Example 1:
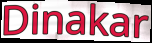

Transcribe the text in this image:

Dinakar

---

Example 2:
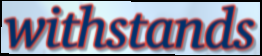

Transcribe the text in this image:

withstands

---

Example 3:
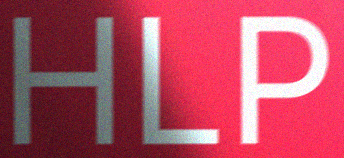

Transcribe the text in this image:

HLP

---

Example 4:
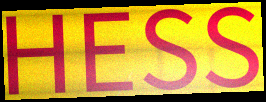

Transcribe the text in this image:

HESS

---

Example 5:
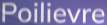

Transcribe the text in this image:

Poilievre